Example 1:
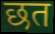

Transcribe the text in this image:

छत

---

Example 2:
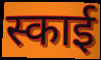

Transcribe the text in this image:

स्काई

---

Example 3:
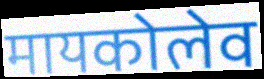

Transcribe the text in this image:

मायकोलेव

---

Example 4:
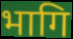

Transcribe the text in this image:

भागि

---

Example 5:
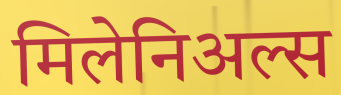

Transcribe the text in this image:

मिलेनिअल्स